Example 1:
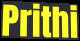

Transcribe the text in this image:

Prithi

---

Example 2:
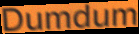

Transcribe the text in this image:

Dumdum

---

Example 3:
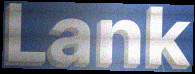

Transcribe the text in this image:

Lank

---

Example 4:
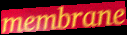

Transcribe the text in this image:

membrane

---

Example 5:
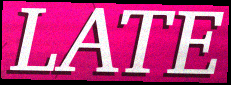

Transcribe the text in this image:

LATE